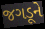
જગડૂને